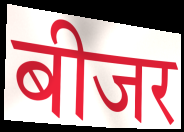
बीजर